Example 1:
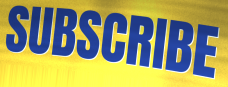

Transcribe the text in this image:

SUBSCRIBE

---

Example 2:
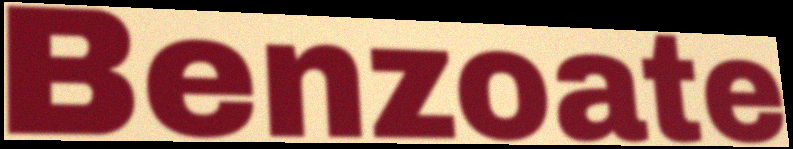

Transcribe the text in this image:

Benzoate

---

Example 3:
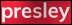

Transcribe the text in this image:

presley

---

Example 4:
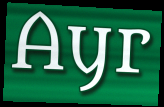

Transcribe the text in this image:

Ayr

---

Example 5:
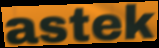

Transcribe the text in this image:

astek